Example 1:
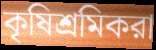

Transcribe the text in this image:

কৃষিশ্রমিকরা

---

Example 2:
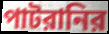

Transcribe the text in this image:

পাটরানির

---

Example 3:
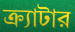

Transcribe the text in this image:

ক্র্যাটার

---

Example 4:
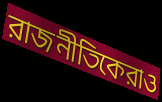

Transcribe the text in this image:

রাজনীতিকেরাও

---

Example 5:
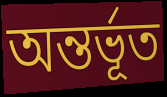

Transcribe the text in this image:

অন্তর্ভূত